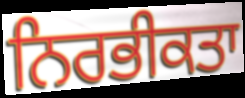
ਨਿਰਭੀਕਤਾ